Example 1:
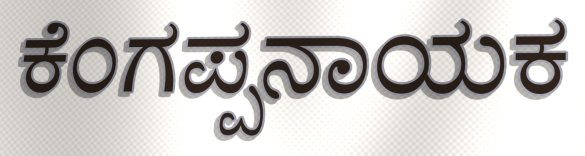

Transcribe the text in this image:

ಕೆಂಗಪ್ಪನಾಯಕ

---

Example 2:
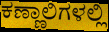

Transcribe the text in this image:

ಕಣ್ಣಾಲಿಗಳಲ್ಲಿ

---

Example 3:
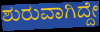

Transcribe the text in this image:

ಶುರುವಾಗಿದ್ದೇ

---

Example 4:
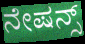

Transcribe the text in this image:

ನೇಷನ್ಸ್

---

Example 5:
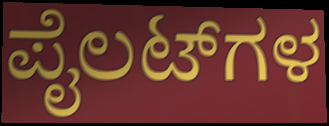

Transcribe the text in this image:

ಪೈಲಟ್‌ಗಳ